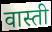
वास्ती